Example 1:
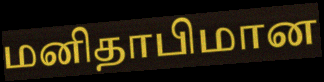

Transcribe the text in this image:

மனிதாபிமான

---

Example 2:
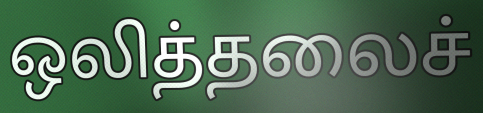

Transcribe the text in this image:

ஒலித்தலைச்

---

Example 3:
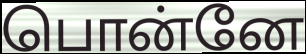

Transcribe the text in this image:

பொன்னே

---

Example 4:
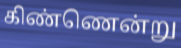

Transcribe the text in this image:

கிண்ணென்று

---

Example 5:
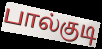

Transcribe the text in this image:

பால்குடி